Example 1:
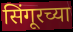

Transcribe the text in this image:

सिंगूरच्या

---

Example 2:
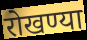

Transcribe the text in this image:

रोखण्या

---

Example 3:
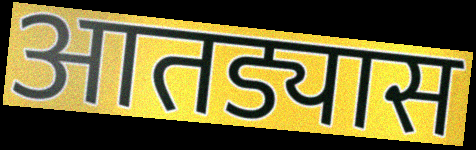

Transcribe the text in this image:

आतड्यास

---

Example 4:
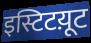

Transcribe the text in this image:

इस्टिटय़ूट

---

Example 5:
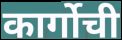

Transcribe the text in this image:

कार्गोची